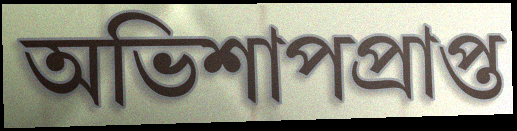
অভিশাপপ্রাপ্ত